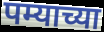
पम्याच्या